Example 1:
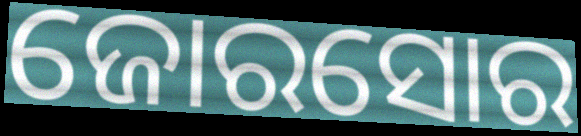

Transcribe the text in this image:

ଜୋରସୋର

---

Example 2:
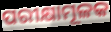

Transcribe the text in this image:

ପରୀକ୍ଷାମୂଳକ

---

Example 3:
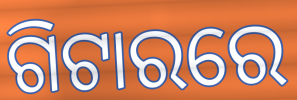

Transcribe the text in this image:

ଗିଟାରରେ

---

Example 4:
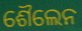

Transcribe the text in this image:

ଶୈଲେନ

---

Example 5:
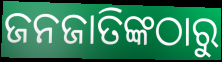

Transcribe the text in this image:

ଜନଜାତିଙ୍କଠାରୁ